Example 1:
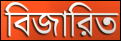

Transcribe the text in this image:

বিজারিত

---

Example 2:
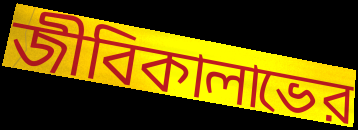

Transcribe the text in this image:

জীবিকালাভের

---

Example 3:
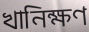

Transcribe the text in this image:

খানিক্ষণ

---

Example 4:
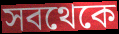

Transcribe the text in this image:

সবথেকে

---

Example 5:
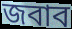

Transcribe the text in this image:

জবাব